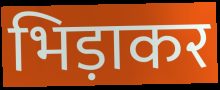
भिड़ाकर